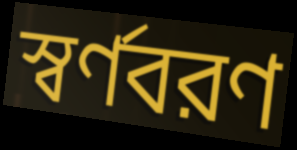
স্বর্ণবরণ